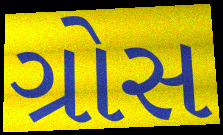
ગ્રોસ